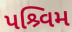
પશ્ર્વિમ